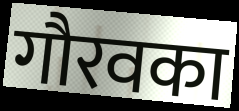
गौरवका